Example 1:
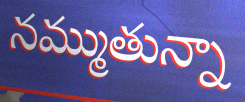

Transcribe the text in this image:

నమ్ముతున్నా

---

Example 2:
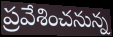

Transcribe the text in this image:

ప్రవేశించనున్న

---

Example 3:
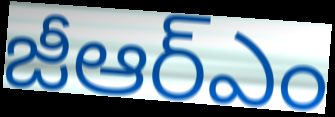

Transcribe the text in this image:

జీఆర్ఎం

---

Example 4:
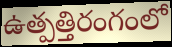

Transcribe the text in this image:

ఉత్పత్తిరంగంలో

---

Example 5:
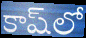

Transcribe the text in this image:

కాష్‌లో